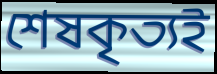
শেষকৃত্যই